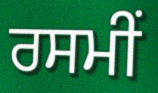
ਰਸਮੀਂ